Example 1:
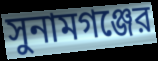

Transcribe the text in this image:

সুনামগঞ্জের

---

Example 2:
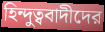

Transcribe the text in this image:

হিন্দুত্ববাদীদের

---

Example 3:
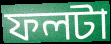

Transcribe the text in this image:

ফলটা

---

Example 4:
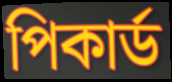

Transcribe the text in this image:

পিকার্ড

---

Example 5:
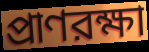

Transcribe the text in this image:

প্রাণরক্ষা